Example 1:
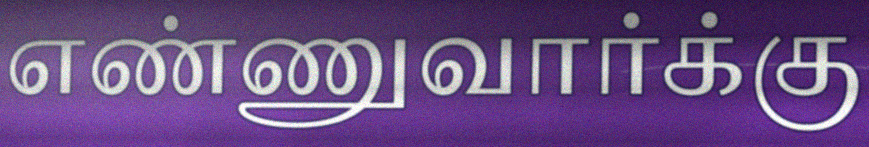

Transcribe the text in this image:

எண்ணுவார்க்கு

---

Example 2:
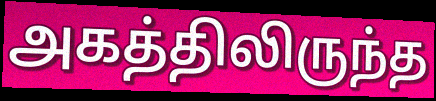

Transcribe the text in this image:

அகத்திலிருந்த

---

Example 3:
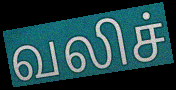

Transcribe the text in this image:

வலிச்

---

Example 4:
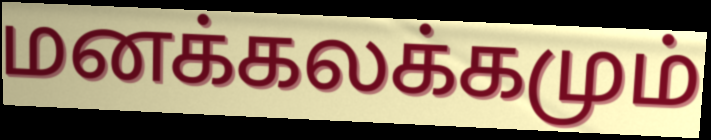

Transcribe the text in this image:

மனக்கலக்கமும்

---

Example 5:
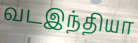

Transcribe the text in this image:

வடஇந்தியா